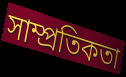
সাম্প্রতিকতা